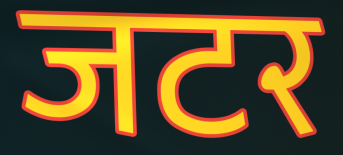
जटर